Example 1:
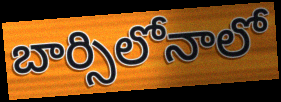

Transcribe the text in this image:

బార్సిలోనాలో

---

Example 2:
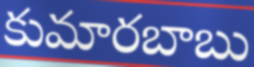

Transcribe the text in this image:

కుమారబాబు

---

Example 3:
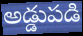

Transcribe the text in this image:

అడ్డుపడి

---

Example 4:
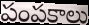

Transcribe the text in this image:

పంపకాలు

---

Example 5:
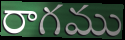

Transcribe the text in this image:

రాగము